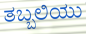
ತಬ್ಬಲಿಯು